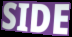
SIDE